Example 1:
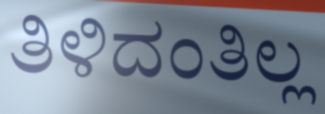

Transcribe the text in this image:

ತಿಳಿದಂತಿಲ್ಲ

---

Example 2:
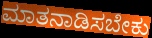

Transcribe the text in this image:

ಮಾತನಾಡಿಸಬೇಕು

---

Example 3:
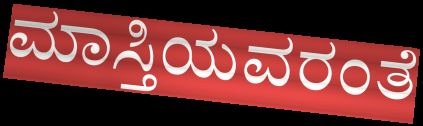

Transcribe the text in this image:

ಮಾಸ್ತಿಯವರಂತೆ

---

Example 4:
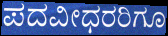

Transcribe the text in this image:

ಪದವೀಧರರಿಗೂ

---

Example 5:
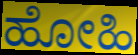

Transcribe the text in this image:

ಹೋಹಿ